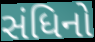
સંધિનો